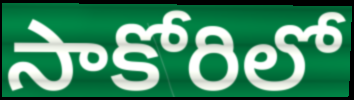
సాకోరిలో